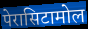
पेरासिटामोल